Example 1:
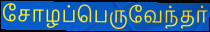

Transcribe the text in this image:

சோழப்பெருவேந்தர்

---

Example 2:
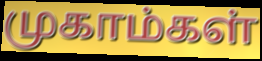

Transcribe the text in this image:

முகாம்கள்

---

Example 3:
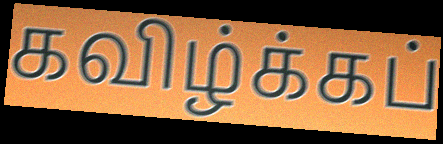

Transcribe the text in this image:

கவிழ்க்கப்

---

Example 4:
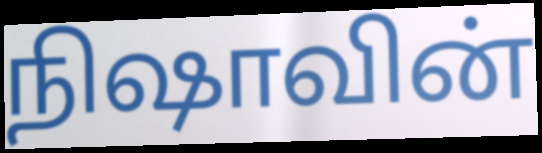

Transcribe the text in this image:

நிஷாவின்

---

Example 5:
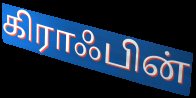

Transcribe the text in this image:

கிராஃபின்